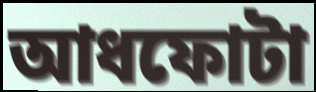
আধফোটা